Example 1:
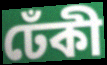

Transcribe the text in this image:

ঢেঁকী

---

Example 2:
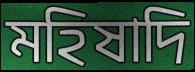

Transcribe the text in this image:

মহিষাদি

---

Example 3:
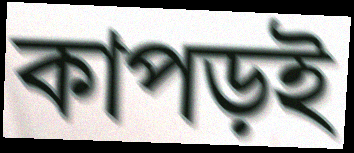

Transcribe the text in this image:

কাপড়ই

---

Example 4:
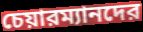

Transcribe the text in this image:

চেয়ারম্যানদের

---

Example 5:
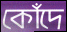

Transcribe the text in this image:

কোঁদে